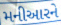
મનીઆરને